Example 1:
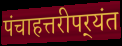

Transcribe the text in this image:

पंचाहत्तरीपर्यंत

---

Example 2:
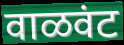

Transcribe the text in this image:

वाळवंट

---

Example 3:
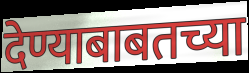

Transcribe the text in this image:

देण्याबाबतच्या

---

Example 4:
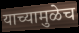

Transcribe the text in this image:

याच्यामुळेच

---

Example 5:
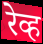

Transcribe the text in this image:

रेव्ह